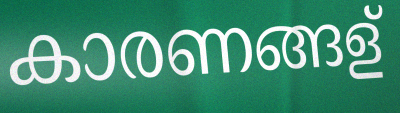
കാരണങ്ങള്